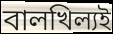
বালখিল্যই